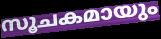
സൂചകമായും